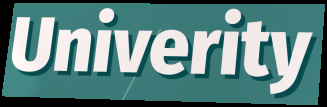
Univerity